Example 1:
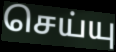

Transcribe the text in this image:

செய்யு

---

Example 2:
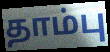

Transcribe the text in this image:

தாம்பு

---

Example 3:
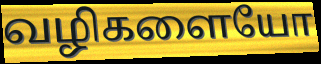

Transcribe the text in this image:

வழிகளையோ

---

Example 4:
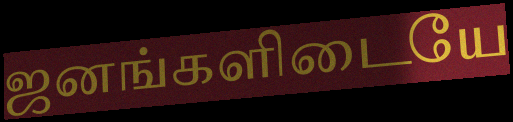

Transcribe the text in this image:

ஜனங்களிடையே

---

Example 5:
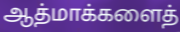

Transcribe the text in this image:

ஆத்மாக்களைத்